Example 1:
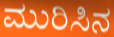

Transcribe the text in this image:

ಮುರಿಸಿನ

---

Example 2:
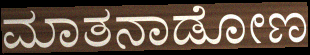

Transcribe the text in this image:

ಮಾತನಾಡೋಣ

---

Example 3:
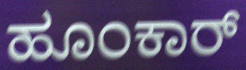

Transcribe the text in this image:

ಹೂಂಕಾರ್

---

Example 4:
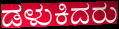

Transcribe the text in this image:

ಡಳುಕಿದರು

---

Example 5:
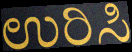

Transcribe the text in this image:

ಉರಿಸಿ